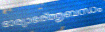
ഭാര്യാഭര്ത്തൃബന്ധം